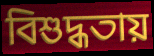
বিশুদ্ধতায়